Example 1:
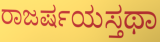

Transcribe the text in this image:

ರಾಜರ್ಷಯಸ್ತಥಾ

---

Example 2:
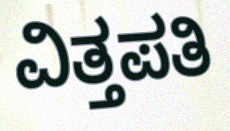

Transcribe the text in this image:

ವಿತ್ತಪತಿ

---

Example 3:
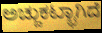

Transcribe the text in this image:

ಅಚ್ಚುಕಟ್ಟಾಗಿದೆ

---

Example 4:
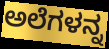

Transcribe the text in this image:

ಅಲೆಗಳನ್ನ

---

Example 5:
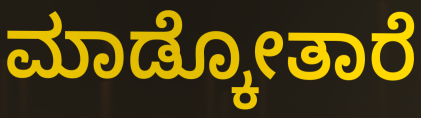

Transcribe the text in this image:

ಮಾಡ್ಕೋತಾರೆ